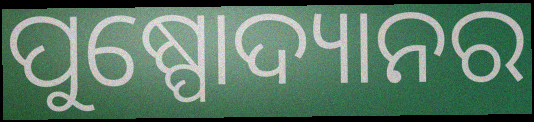
ପୁଷ୍ପୋଦ୍ୟାନର